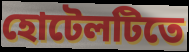
হোটেলটিতে